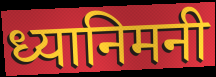
ध्यानिमनी